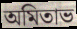
অমিতাভ